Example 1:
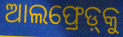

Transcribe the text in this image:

ଆଲଫ୍ରେଡ଼୍‍କୁ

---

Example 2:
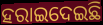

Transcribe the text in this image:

ହରାଇଦେଇଛି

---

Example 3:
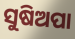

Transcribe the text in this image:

ସୁଷିଅପା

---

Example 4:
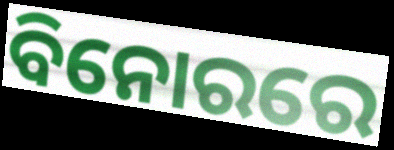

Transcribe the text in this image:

ବିନୋରରେ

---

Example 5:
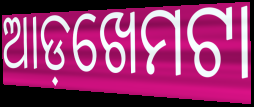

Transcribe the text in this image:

ଆଡ଼ଖେମଟା